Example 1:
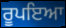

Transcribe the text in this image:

ਰੂਪਇਆ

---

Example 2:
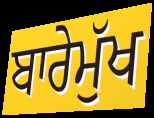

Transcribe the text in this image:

ਬਾਰੇਮੁੱਖ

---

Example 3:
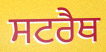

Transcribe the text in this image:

ਸਟਰੈਥ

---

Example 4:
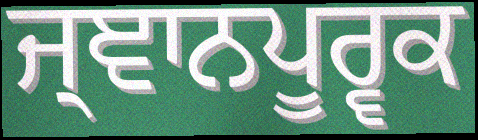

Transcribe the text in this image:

ਜ੍ਞਾਨਪੂਰ੍ਵਕ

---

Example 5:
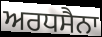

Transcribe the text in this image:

ਅਰਧਸੈਨਾ